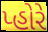
પ્હોરે